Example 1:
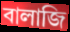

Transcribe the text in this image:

বালাজি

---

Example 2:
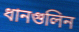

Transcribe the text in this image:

ধানগুলিন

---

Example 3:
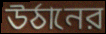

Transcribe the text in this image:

উঠানের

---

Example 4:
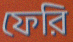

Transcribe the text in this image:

ফেরি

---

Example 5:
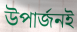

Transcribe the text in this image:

উপার্জনই